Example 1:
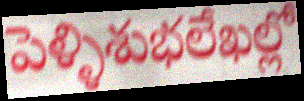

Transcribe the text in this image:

పెళ్ళిశుభలేఖల్లో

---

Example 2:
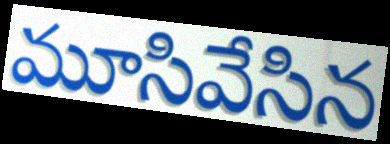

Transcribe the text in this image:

మూసివేసిన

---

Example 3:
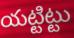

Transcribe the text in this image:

యట్టిట్టు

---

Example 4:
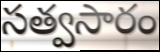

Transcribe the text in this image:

సత్వసారం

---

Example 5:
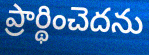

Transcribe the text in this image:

ప్రార్థించెదను